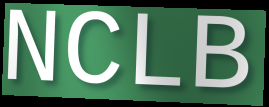
NCLB